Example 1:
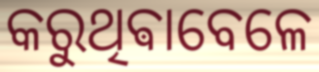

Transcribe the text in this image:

କରୁଥିଵାବେଳେ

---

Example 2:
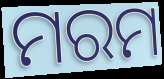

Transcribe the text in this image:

ମରମ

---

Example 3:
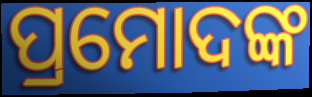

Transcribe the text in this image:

ପ୍ରମୋଦଙ୍କ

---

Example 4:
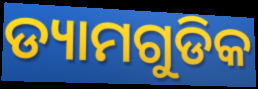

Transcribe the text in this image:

ଡ୍ୟାମଗୁଡିକ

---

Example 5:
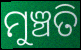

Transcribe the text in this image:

ମୁଞ୍ଚତି